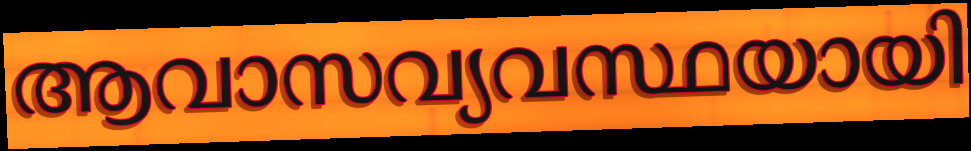
ആവാസവ്യവസ്ഥയായി